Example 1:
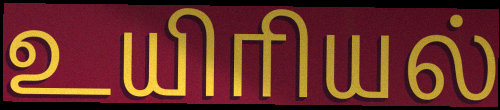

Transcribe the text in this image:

உயிரியல்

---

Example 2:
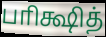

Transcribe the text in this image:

பரிக்ஷித்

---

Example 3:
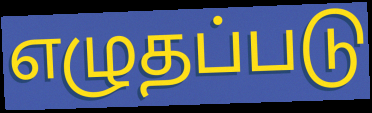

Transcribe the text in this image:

எழுதப்படு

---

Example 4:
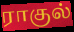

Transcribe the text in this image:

ராகுல்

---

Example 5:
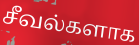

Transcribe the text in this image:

சீவல்களாக